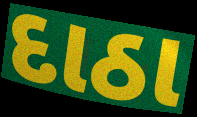
દાઠા